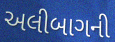
અલીબાગની